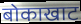
बोकाखाट